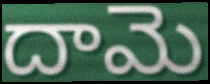
దామె